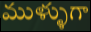
ముళ్ళుగా